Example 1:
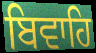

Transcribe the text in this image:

ਬਿਵਾਹਿ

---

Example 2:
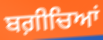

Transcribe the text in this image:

ਬਗ਼ੀਚਿਆਂ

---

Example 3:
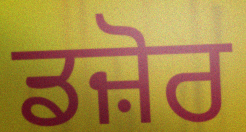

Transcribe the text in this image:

ਡਜ਼ੋਰ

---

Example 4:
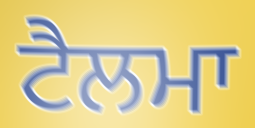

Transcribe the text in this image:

ਟੈਲਮਾ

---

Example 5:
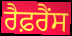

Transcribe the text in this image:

ਰੈਫ਼ਰੈਂਸ